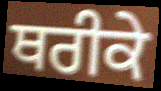
ਥਰੀਕੇ